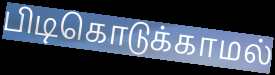
பிடிகொடுக்காமல்